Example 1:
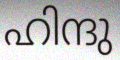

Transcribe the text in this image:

ഹിന്ദു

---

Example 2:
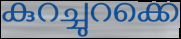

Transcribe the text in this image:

കുറച്ചുറക്കെ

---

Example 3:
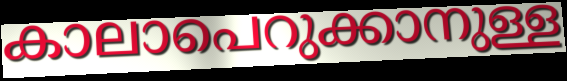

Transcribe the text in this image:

കാലാപെറുക്കാനുള്ള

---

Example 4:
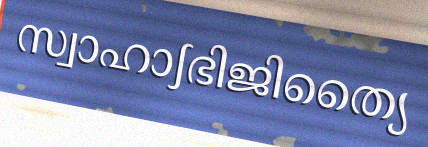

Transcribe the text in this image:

സ്വാഹാഽഭിജിത്യൈ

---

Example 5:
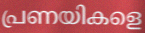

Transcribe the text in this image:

പ്രണയികളെ